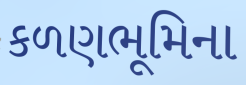
કળણભૂમિના